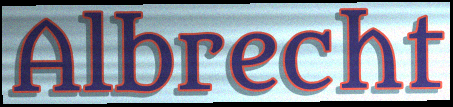
Albrecht